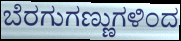
ಬೆರಗುಗಣ್ಣುಗಳಿಂದ